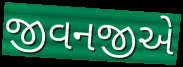
જીવનજીએ